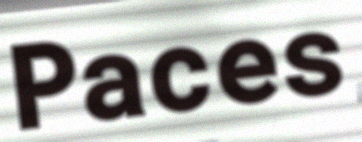
Paces